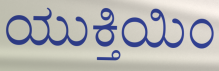
ಯುಕ್ತಿಯಿಂ